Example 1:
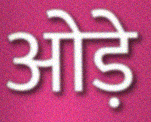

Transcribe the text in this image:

ओड़े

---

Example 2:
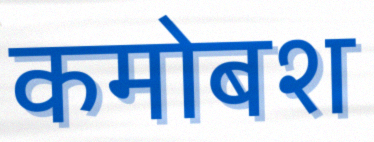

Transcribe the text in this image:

कमोबश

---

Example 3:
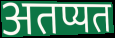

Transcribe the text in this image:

अतप्यत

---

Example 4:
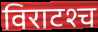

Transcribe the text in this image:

विराटश्च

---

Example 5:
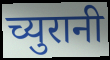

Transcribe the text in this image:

च्युरानी